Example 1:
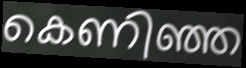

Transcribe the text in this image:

കെണിഞ്ഞ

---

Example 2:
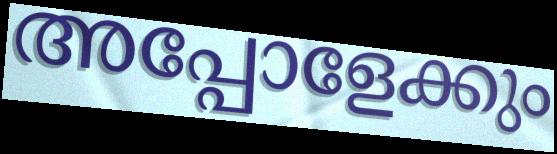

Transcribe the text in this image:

അപ്പോളേക്കും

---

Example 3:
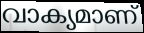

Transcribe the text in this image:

വാക്യമാണ്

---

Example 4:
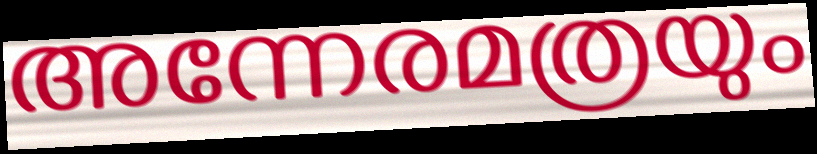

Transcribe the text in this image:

അന്നേരമത്രയും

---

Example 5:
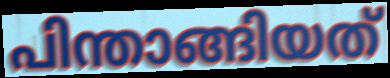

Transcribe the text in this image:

പിന്താങ്ങിയത്